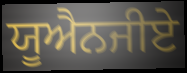
ਯੂਐਨਜੀਏ